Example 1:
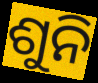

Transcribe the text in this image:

ଶୁନି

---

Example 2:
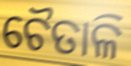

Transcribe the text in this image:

ଚୈତାଳି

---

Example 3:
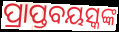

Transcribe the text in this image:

ପ୍ରାପ୍ତବୟସ୍କଙ୍କ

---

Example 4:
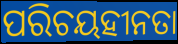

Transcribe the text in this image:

ପରିଚୟହୀନତା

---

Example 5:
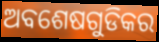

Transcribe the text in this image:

ଅବଶେଷଗୁଡିକର